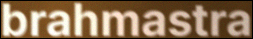
brahmastra